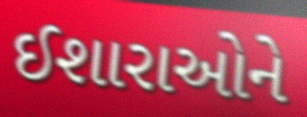
ઈશારાઓને